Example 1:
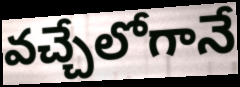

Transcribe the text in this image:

వచ్చేలోగానే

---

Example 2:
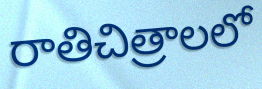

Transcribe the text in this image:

రాతిచిత్రాలలో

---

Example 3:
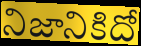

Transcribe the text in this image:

నిజానికిదో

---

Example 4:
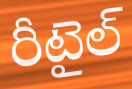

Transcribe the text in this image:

రీటైల్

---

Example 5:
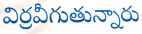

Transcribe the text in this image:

విర్రవీగుతున్నారు